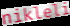
nikleli